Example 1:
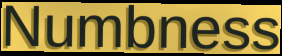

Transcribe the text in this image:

Numbness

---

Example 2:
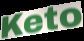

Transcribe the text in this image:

Keto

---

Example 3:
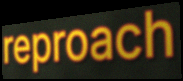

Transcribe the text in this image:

reproach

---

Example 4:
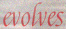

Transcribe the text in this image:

evolves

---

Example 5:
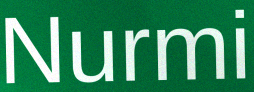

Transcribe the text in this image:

Nurmi